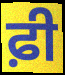
ਫ਼ੀ